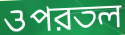
ওপরতল